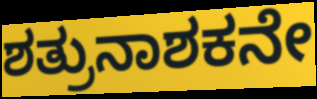
ಶತ್ರುನಾಶಕನೇ